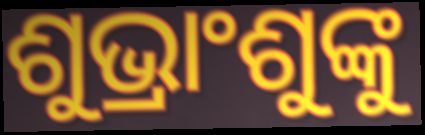
ଶୁଭ୍ରାଂଶୁଙ୍କୁ